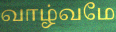
வாழ்வமே